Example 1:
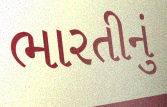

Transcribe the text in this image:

ભારતીનું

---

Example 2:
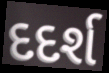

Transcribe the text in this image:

દદર્શ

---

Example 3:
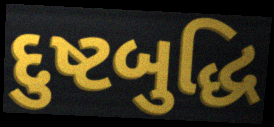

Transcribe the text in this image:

દુષ્ટબુદ્ધિ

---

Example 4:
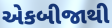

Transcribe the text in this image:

એકબીજાથી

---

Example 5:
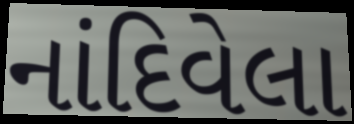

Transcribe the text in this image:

નાંદિવેલા